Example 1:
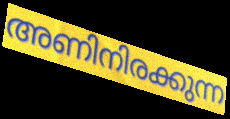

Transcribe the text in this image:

അണിനിരക്കുന്ന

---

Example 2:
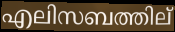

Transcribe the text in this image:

എലിസബത്തില്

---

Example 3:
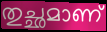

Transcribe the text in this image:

തുച്ഛമാണ്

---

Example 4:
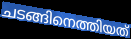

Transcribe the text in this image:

ചടങ്ങിനെത്തിയത്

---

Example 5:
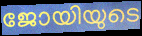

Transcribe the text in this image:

ജോയിയുടെ